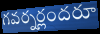
గవర్నర్లందరూ